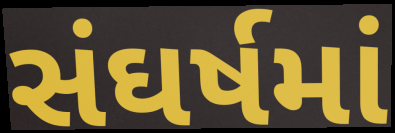
સંઘર્ષમાં